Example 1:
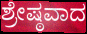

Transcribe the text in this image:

ಶ್ರೇಷ್ಠವಾದ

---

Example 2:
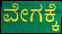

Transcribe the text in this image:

ವೇಗಕ್ಕೆ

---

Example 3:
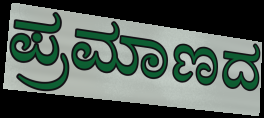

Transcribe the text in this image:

ಪ್ರಮಾಣದ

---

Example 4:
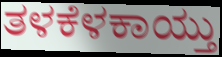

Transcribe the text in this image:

ತಳಕೆಳಕಾಯ್ತು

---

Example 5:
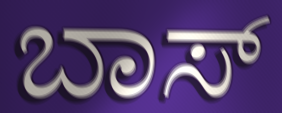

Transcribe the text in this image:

ಬಾಸ್